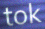
tok